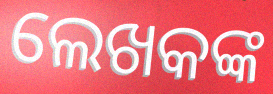
ଲେଖକଙ୍କ